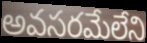
అవసరమేలేని